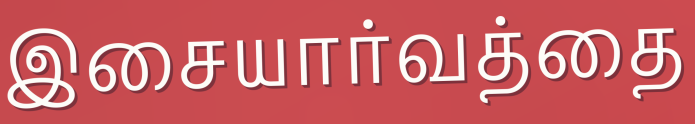
இசையார்வத்தை